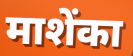
माशेंका